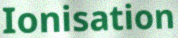
Ionisation